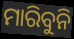
ମାରିବୁନି